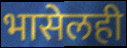
भासेलही